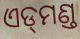
ଏଡ୍‌ମଣ୍ଡ